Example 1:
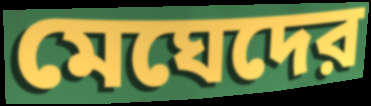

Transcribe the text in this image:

মেঘেদের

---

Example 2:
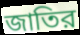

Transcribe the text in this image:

জাতির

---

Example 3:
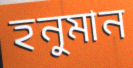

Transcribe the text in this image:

হনুমান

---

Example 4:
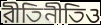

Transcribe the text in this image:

রীতিনীতিও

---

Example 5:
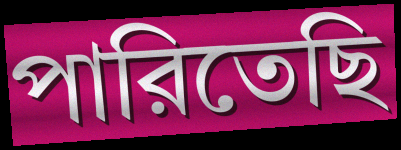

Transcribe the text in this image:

পারিতেছি